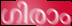
ഗിരാം